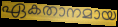
ഏകതാനമായ